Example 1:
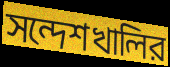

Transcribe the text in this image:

সন্দেশখালির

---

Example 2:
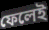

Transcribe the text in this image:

ফেলেই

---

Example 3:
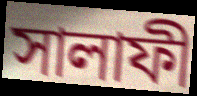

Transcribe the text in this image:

সালাফী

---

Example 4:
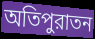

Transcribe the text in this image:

অতিপুরাতন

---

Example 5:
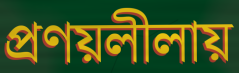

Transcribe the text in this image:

প্রণয়লীলায়